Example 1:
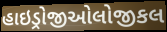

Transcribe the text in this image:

હાઇડ્રોજીઓલોજીકલ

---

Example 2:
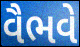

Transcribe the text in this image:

વૈભવે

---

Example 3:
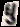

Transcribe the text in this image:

ધુ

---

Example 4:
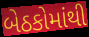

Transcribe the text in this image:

બેઠકોમાંથી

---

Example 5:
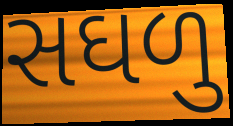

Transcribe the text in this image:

સઘળુ